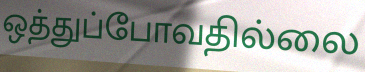
ஒத்துப்போவதில்லை